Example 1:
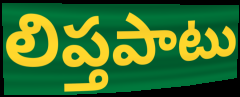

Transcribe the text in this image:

లిప్తపాటు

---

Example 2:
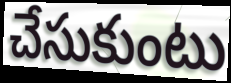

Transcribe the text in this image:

చేసుకుంటు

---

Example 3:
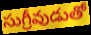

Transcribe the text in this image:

సుగ్రీవుడుతో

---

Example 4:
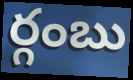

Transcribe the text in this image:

ర్గంబు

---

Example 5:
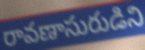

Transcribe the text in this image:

రావణాసురుడిని